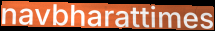
navbharattimes